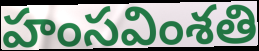
హంసవింశతి